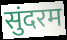
सुंदरम